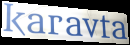
karavta